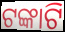
ଟଙ୍କାଟି